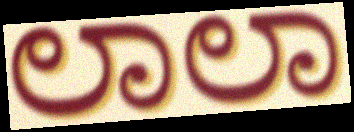
ಲಾಲಾ